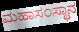
ಮಹಾಸಂಸ್ಥಾನ